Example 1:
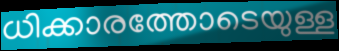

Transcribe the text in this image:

ധിക്കാരത്തോടെയുള്ള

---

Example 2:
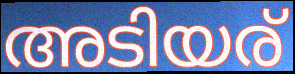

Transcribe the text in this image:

അടിയര്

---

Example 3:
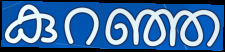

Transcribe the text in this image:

കുറഞ്ഞ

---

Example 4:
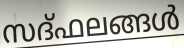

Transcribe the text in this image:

സദ്ഫലങ്ങൾ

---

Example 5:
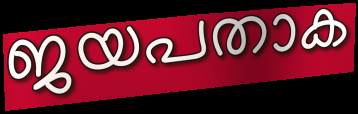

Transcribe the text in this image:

ജയപതാക